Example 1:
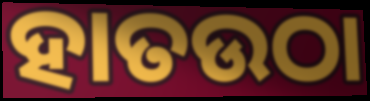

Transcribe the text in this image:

ହାତଉଠା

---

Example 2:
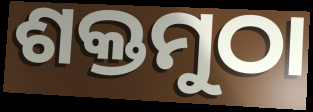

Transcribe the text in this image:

ଶକ୍ତମୁଠା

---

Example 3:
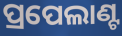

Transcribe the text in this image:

ପ୍ରପେଲାଣ୍ଟ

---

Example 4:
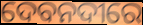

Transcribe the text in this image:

ଦେବନଦୀରେ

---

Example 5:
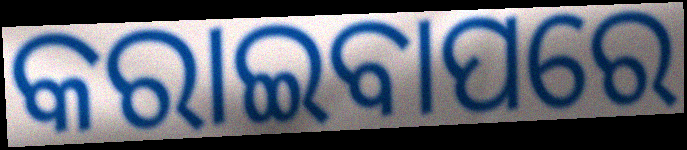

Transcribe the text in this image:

କରାଇବାପରେ